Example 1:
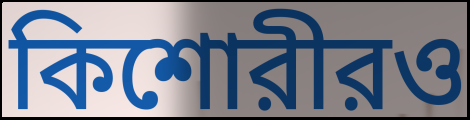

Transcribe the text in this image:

কিশোরীরও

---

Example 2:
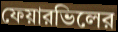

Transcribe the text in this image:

ফেয়ারভিলের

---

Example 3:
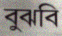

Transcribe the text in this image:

বুঝবি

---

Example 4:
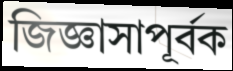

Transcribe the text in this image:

জিজ্ঞাসাপূর্বক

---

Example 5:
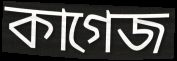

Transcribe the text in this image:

কাগেজ